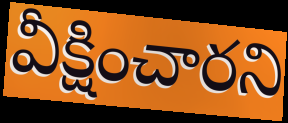
వీక్షించారని